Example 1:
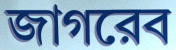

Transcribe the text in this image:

জাগরেব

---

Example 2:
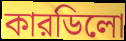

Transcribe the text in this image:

কারডিলো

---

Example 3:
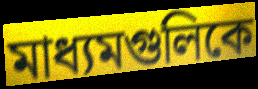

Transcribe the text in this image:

মাধ্যমগুলিকে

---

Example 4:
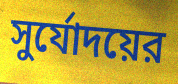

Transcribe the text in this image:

সুর্যোদয়ের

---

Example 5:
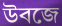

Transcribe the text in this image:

উবজে